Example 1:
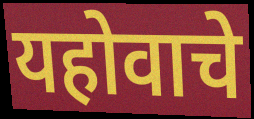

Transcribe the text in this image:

यहोवाचे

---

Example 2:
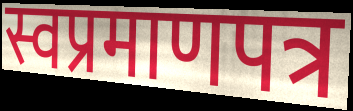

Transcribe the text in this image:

स्वप्रमाणपत्र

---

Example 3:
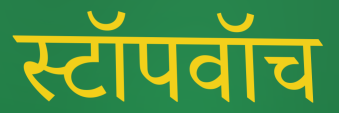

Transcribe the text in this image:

स्टॉपवॉच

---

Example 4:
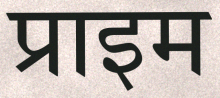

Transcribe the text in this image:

प्राइम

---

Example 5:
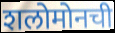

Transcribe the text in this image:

शलोमोनची